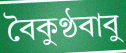
বৈকুণ্ঠবাবু